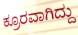
ಕ್ರೂರವಾಗಿದ್ದು